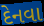
દેનવા